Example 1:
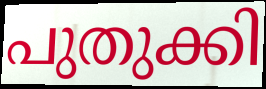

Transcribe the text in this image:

പുതുക്കി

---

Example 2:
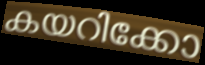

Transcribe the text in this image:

കയറിക്കോ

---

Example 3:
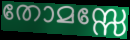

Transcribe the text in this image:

തോമസ്സേ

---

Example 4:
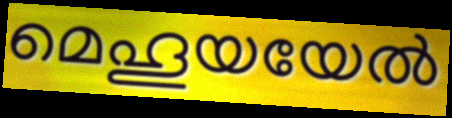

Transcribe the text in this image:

മെഹൂയയേൽ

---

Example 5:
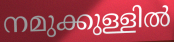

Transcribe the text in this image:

നമുക്കുള്ളിൽ